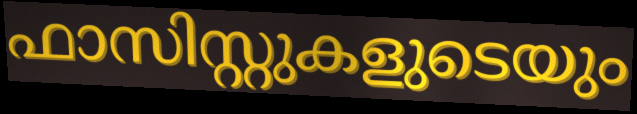
ഫാസിസ്റ്റുകളുടെയും